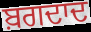
ਬ਼ਗਦਾਦ